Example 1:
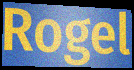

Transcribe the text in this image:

Rogel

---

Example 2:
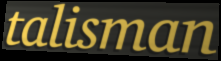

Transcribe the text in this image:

talisman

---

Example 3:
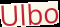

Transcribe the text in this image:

Ulbo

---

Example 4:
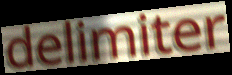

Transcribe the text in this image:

delimiter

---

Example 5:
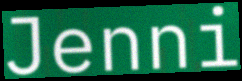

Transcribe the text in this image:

Jenni